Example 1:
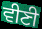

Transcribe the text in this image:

ਵੀਣੀ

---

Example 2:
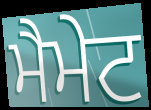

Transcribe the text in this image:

ਮੈਮੇਟ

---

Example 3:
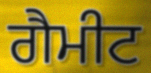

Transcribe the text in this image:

ਗੈਮੀਟ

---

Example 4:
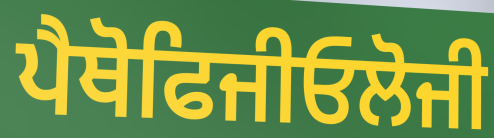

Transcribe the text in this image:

ਪੈਥੋਫਿਜੀਓਲੋਜੀ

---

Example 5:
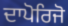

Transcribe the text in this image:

ਦਾਪੋਰਿਜੋ